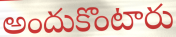
అందుకొంటారు